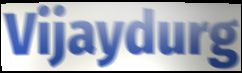
Vijaydurg